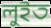
লুইত